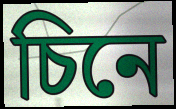
চিনে